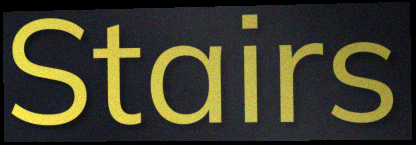
Stairs